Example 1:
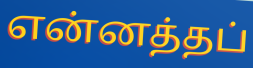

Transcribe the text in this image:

என்னத்தப்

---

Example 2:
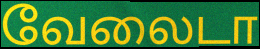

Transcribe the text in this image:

வேலைடா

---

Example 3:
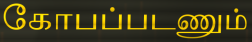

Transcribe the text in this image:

கோபப்படணும்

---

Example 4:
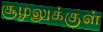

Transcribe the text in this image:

சூழலுக்குள்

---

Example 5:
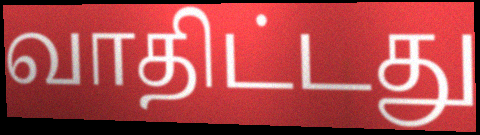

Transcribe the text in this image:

வாதிட்டது